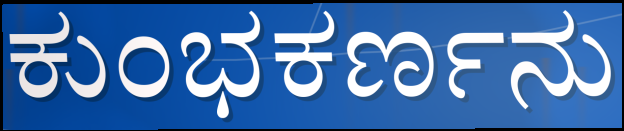
ಕುಂಭಕರ್ಣನು